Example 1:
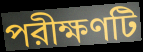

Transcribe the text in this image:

পরীক্ষণটি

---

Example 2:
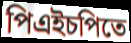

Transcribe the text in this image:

পিএইচপিতে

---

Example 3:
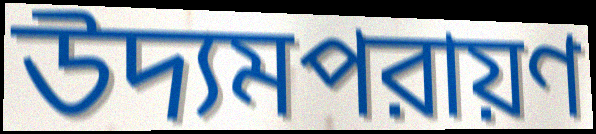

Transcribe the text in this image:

উদ্যমপরায়ণ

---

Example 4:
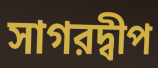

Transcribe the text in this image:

সাগরদ্বীপ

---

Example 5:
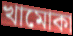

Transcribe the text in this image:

খামোকা